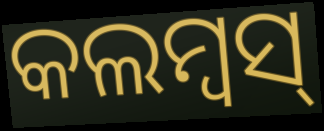
କଲମ୍ବସ୍